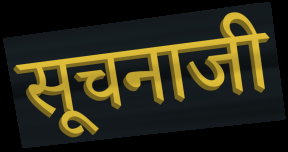
सूचनाजी